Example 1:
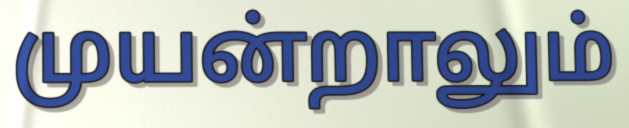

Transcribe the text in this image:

முயன்றாலும்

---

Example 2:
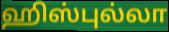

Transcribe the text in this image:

ஹிஸ்புல்லா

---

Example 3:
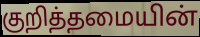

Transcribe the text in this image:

குறித்தமையின்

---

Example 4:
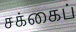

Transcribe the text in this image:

சக்கைப்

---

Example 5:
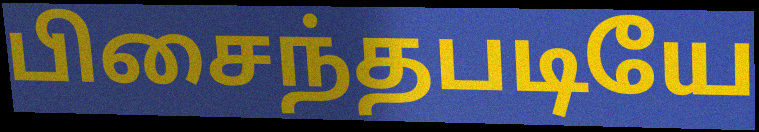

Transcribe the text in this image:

பிசைந்தபடியே